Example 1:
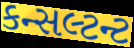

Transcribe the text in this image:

કન્સલ્ટન્ટ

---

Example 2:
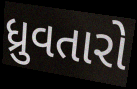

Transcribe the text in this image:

ધ્રુવતારો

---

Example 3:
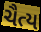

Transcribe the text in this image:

ચૈત્ય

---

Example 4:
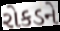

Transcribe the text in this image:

રોકડને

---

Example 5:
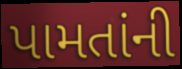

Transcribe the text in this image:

પામતાંની